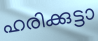
ഹരിക്കുട്ടാ